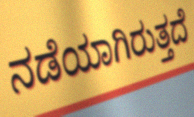
ನಡೆಯಾಗಿರುತ್ತದೆ